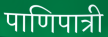
पाणिपात्री